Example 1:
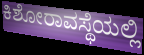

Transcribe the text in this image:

ಕಿಶೋರಾವಸ್ಥೆಯಲ್ಲಿ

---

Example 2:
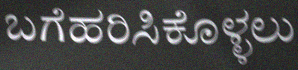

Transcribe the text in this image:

ಬಗೆಹರಿಸಿಕೊಳ್ಳಲು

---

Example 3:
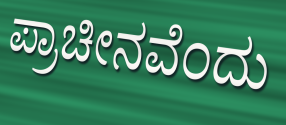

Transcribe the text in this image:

ಪ್ರಾಚೀನವೆಂದು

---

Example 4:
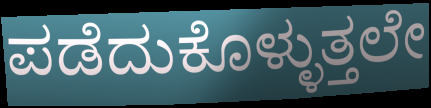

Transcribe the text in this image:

ಪಡೆದುಕೊಳ್ಳುತ್ತಲೇ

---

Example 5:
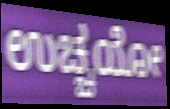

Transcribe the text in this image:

ಉಚ್ಚಯೋ